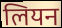
लियन